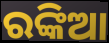
ରଙ୍କିଆ